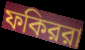
ফকিররা